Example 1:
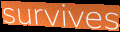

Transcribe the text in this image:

survives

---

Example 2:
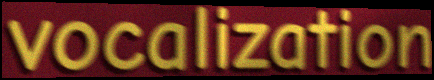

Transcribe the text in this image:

vocalization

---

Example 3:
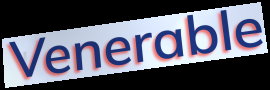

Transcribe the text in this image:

Venerable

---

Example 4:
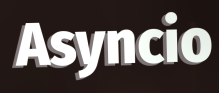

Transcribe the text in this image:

Asyncio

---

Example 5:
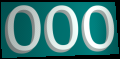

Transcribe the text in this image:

OOO